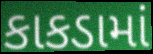
કાકડામાં